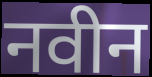
नवीन